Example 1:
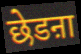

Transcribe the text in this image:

छेडऩा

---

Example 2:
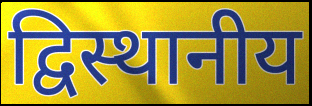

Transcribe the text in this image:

द्विस्थानीय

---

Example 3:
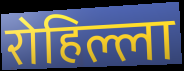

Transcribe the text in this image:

रोहिल्ला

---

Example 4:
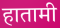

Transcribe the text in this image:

हातामी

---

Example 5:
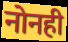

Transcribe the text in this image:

नोनही